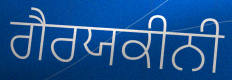
ਗੈਰਯਕੀਨੀ